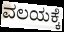
ವಲಯಕ್ಕೆ